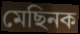
মেছিনক